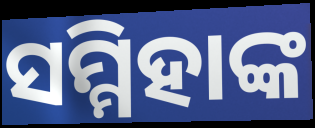
ସମ୍ମିହାଙ୍କ